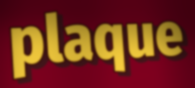
plaque